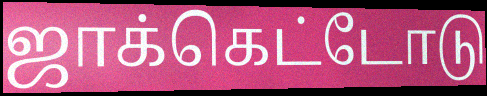
ஜாக்கெட்டோடு